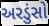
અરડુંસો